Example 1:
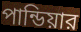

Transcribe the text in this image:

পান্ডিয়ার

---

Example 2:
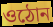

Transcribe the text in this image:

ওঠোন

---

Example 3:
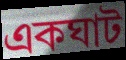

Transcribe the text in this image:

একঘাট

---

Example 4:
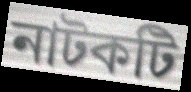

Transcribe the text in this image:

নাটকটি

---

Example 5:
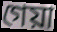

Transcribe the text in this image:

গেয়া